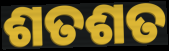
ଶତଶତ